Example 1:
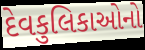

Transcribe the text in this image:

દેવકુલિકાઓનો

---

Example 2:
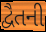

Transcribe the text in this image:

દ્વૈતની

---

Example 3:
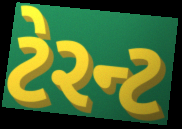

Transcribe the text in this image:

ટેરન્ટ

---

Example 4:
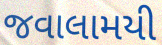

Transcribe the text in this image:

જવાલામયી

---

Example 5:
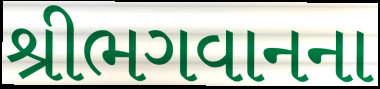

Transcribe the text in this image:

શ્રીભગવાનના